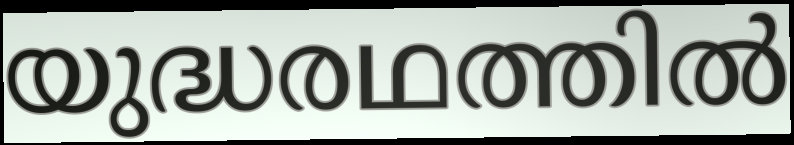
യുദ്ധരഥത്തിൽ